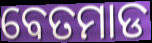
ବେତମାଡ